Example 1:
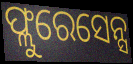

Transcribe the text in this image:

ଫ୍ଲୁରେସେନ୍ସ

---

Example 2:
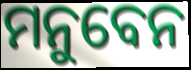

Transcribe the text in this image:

ମନୁବେନ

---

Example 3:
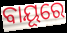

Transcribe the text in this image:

ବାୟୂରେ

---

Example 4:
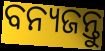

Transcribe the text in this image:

ବନ୍ୟଜନ୍ତୁ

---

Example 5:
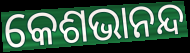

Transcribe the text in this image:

କେଶଭାନନ୍ଦ